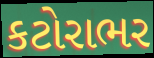
કટોરાભર